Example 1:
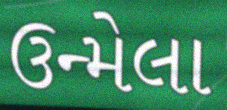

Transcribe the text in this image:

ઉન્મેલા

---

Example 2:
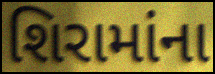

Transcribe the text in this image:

શિરામાંના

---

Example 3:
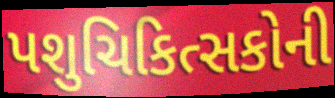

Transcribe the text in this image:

પશુચિકિત્સકોની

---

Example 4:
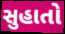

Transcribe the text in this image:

સુહાતો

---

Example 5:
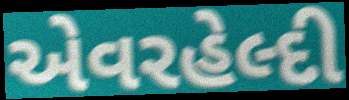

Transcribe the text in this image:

એવરહેલ્દી